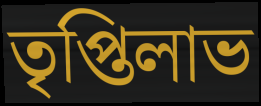
তৃপ্তিলাভ